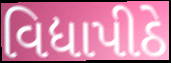
વિદ્યાપીઠે